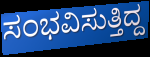
ಸಂಭವಿಸುತ್ತಿದ್ದ